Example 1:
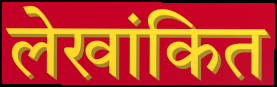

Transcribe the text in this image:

लेखांकित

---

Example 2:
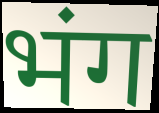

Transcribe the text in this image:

भंग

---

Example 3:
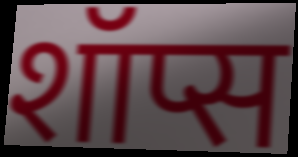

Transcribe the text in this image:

शॉप्स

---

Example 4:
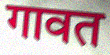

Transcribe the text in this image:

गावत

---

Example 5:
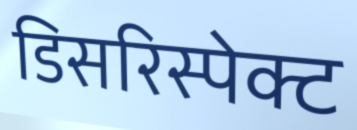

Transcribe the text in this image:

डिसरिस्पेक्ट